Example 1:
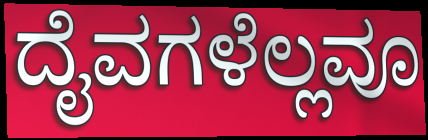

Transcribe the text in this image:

ದೈವಗಳೆಲ್ಲವೂ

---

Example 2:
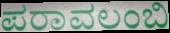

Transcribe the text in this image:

ಪರಾವಲಂಬಿ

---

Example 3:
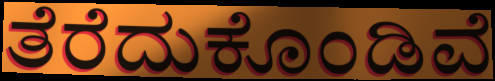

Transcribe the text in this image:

ತೆರೆದುಕೊಂಡಿವೆ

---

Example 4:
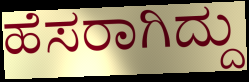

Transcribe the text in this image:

ಹೆಸರಾಗಿದ್ದು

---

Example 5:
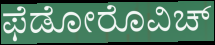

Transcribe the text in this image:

ಫೆಡೋರೊವಿಚ್